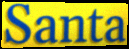
Santa